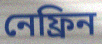
নেফ্রিন